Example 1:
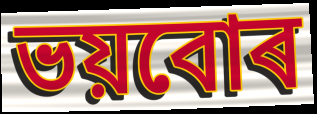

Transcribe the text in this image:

ভয়বোৰ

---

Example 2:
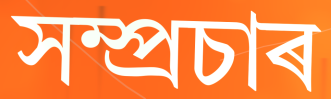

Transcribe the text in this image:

সম্প্ৰচাৰ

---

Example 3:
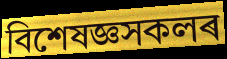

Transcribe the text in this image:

বিশেষজ্ঞসকলৰ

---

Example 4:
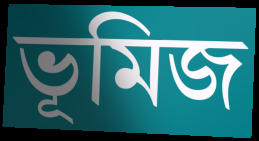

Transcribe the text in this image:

ভূমিজ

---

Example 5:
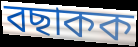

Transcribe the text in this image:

বছাকক